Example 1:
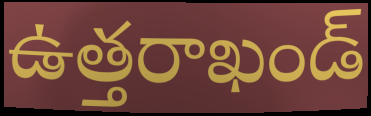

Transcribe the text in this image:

ఉత్తరాఖండ్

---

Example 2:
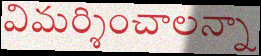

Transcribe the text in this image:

విమర్శించాలన్నా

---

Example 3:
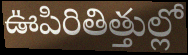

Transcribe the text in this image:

ఊపిరితిత్తుల్లో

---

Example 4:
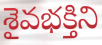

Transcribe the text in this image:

శైవభక్తిని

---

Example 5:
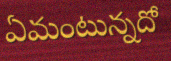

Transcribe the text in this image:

ఏమంటున్నదో